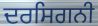
ਦਰਸਿਗਨੀ